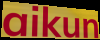
aikun